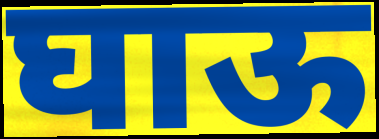
घाऊ